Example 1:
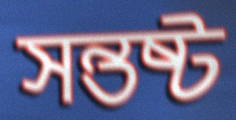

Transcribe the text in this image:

সন্তষ্ট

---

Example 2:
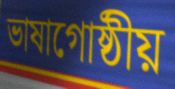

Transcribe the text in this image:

ভাষাগোষ্ঠীয়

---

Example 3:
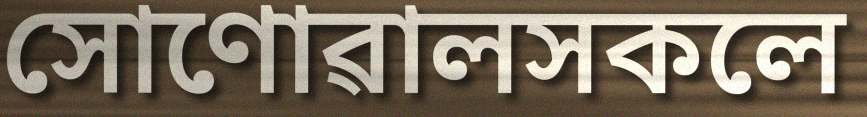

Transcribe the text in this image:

সোণোৱালসকলে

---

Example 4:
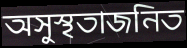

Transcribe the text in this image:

অসুস্থতাজনিত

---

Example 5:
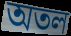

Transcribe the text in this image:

অতল